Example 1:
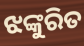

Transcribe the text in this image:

ଝଙ୍କୁରିତ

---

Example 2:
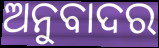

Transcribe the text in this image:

ଅନୁବାଦର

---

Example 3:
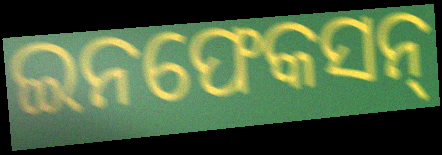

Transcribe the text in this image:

ଇନଫେକସନ୍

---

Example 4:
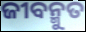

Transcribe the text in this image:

ଜୀବନ୍ମୁତ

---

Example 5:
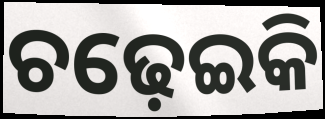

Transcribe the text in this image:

ଚଢ଼େଇକି